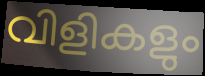
വിളികളും